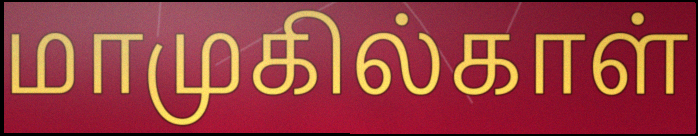
மாமுகில்காள்